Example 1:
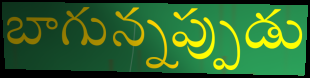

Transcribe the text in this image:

బాగున్నప్పుడు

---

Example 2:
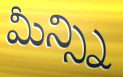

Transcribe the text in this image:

మీన్స్ని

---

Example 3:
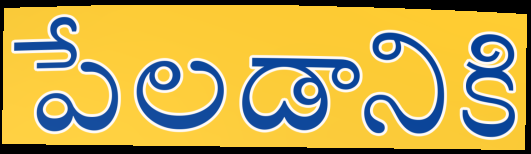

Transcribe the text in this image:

పేలడానికి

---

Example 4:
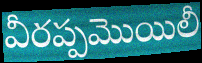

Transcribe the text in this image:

వీరప్పమొయిలీ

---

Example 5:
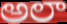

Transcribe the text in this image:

అలా